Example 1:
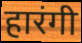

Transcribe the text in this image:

हारंगी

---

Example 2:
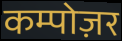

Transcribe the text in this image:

कम्पोज़र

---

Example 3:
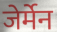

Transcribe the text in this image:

जेर्मेन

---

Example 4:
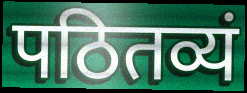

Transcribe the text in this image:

पठितव्यं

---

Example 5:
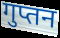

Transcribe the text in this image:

गुप्तन